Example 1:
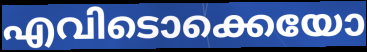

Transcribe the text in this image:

എവിടൊക്കെയോ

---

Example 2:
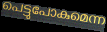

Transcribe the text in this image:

പെട്ടുപോകുമെന്ന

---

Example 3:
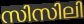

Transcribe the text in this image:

സിസിലി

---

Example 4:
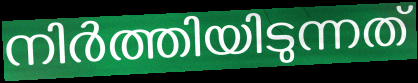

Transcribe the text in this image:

നിർത്തിയിടുന്നത്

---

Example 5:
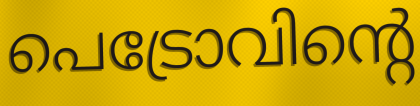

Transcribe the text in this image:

പെട്രോവിന്റെ